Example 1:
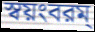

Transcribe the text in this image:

স্বয়ংবরম্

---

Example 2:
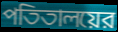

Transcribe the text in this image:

পতিতালয়ের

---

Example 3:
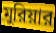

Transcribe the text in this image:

মুরিয়ার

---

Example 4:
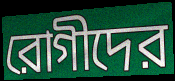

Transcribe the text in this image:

রোগীদের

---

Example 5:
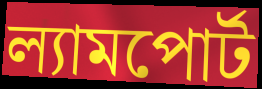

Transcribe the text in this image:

ল্যামপোর্ট